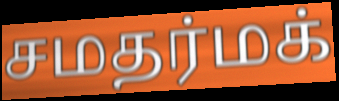
சமதர்மக்